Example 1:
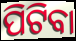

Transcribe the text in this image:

ପିଟିବା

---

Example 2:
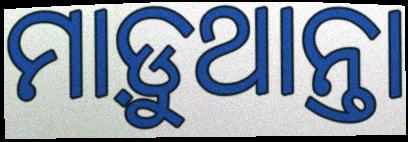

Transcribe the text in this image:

ମାଡ଼ୁଥାନ୍ତା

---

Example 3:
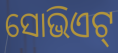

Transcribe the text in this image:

ସୋଭିଏଟ୍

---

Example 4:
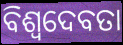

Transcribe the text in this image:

ବିଶ୍ୱଦେବତା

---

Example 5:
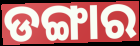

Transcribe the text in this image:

ଡଙ୍ଗାର